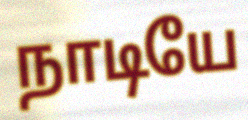
நாடியே